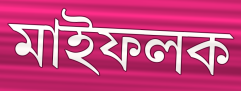
মাইফলক